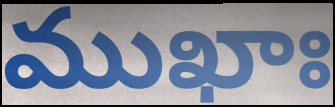
ముఖాః